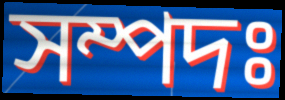
সম্পদঃ